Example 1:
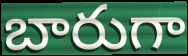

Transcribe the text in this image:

బారుగా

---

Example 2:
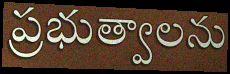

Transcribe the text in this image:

ప్రభుత్వాలను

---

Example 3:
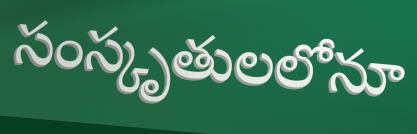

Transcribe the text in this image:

సంస్కృతులలోనూ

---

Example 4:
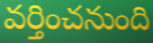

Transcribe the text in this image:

వర్తించనుంది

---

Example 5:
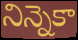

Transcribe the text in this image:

నిన్నెకా